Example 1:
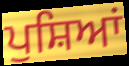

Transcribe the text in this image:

ਪੁਸ਼ਿਆਂ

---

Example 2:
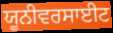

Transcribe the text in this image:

ਯੂਨੀਵਰਸਾਈਟ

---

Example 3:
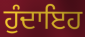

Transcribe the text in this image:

ਹੁੰਦਾਇਹ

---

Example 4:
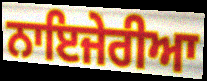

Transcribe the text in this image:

ਨਾਇਜੇਰੀਆ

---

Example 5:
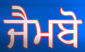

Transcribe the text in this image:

ਜੈਮਬੋ